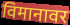
विमानावर